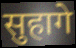
सुहागे